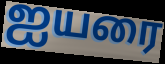
ஐயரை